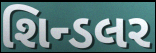
શિન્ડલર